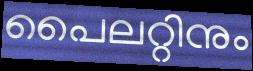
പൈലറ്റിനും